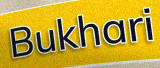
Bukhari